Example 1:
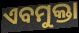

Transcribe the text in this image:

ଏବମୁକ୍ତା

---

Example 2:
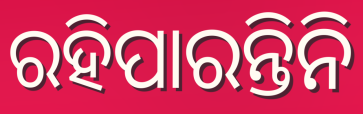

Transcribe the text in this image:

ରହିପାରନ୍ତିନି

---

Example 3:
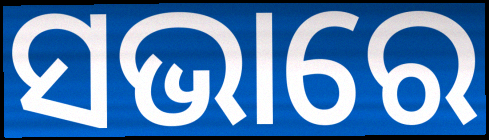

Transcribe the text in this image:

ସଭାରେ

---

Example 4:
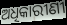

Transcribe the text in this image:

ଅଧିକାରୀଣୀ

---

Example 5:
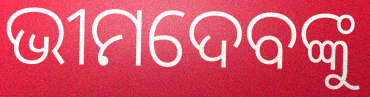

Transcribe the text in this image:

ଭୀମଦେବଙ୍କୁ